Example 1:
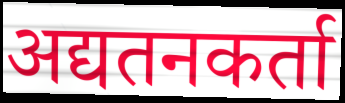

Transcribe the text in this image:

अद्यतनकर्ता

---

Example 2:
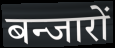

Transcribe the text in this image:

बन्जारों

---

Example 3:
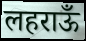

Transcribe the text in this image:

लहराऊँ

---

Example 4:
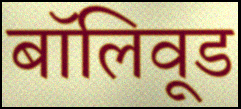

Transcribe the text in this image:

बॉलिवूड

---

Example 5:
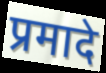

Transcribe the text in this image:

प्रमादे